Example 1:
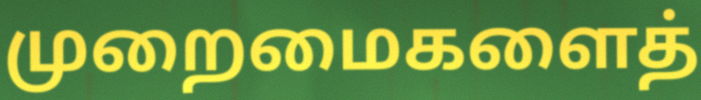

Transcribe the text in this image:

முறைமைகளைத்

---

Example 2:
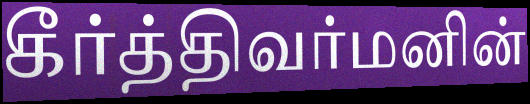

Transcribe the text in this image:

கீர்த்திவர்மனின்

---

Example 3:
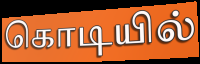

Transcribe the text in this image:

கொடியில்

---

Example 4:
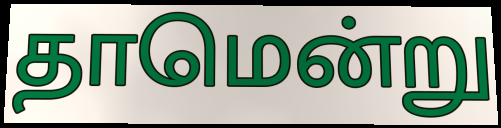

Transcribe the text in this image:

தாமென்று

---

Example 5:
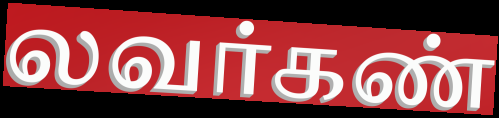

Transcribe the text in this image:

லவர்கண்